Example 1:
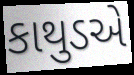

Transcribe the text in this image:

કાથુડએ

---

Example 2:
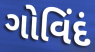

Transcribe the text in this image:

ગોવિંદં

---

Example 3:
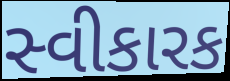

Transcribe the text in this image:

સ્વીકારક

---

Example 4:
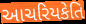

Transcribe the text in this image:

આચરિયકેતિ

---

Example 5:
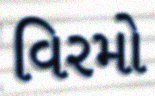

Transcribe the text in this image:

વિરમો